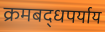
क्रमबद्धपर्याय